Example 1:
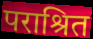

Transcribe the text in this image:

पराश्रित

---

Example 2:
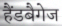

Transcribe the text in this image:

हैंडबैगेज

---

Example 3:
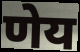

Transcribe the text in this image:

णेय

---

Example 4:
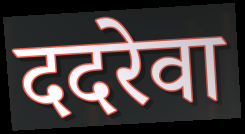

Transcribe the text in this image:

ददरेवा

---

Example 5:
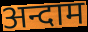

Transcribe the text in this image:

अन्दाम